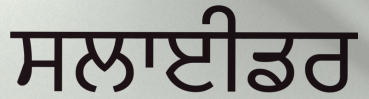
ਸਲਾਈਡਰ